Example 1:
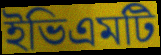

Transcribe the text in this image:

ইভিএমটি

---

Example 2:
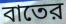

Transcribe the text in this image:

বাতের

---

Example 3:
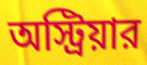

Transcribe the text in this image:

অস্ট্রিয়ার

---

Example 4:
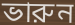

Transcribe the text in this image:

ভারুন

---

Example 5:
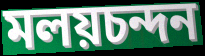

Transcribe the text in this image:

মলয়চন্দন